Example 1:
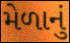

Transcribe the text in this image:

મેળાનું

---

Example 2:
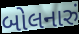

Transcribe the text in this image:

બોલનારું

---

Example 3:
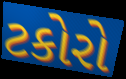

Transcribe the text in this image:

ટકોરો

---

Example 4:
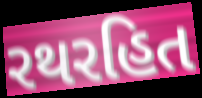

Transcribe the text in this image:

રથરહિત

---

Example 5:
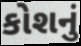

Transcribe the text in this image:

કોશનું